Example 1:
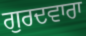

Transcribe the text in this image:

ਗੁਰਦਵਾਰਾ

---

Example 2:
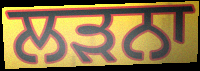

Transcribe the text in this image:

ਲੜਨਾ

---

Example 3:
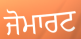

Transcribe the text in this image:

ਜੋਮਾਰਟ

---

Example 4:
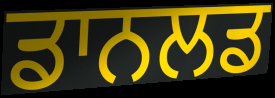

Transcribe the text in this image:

ਡਾਨਲਡ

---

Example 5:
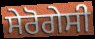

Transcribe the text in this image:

ਸੇਰੋਗੇਸੀ